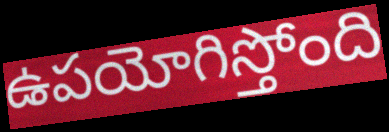
ఉపయోగిస్తోంది